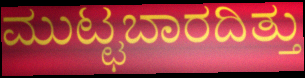
ಮುಟ್ಟಬಾರದಿತ್ತು